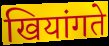
खियांगते